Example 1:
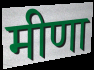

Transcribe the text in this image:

मीणा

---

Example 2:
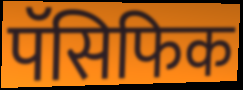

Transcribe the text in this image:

पॅसिफिक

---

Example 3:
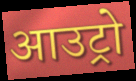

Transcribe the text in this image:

आउट्रो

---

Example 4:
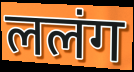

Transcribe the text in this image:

ललंग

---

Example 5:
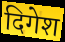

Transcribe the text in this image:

दिगेश